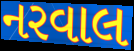
નરવાલ